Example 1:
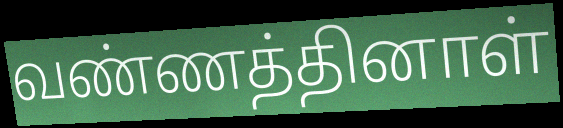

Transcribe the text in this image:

வண்ணத்தினாள்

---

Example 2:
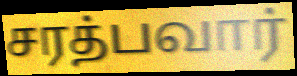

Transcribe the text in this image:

சரத்பவார்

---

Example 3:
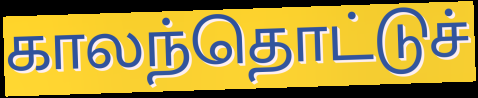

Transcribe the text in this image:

காலந்தொட்டுச்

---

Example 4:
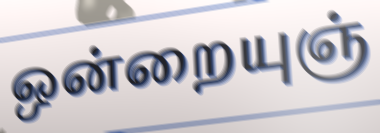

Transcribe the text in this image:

ஒன்றையுஞ்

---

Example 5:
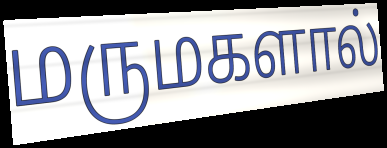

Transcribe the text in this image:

மருமகளால்